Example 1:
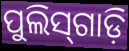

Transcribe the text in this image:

ପୁଲିସ୍‌ଗାଡ଼ି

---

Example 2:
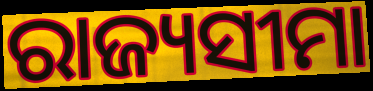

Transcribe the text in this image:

ରାଜ୍ୟସୀମା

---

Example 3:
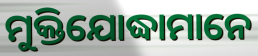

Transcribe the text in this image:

ମୁକ୍ତିଯୋଦ୍ଧାମାନେ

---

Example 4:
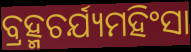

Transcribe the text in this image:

ବ୍ରହ୍ମଚର୍ଯ୍ୟମହିଂସା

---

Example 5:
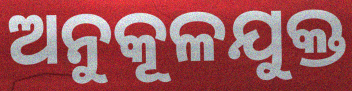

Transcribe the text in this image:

ଅନୁକୂଳଯୁକ୍ତ